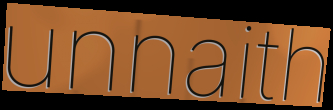
unnaith